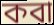
কবা